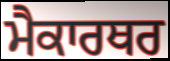
ਮੈਕਾਰਥਰ